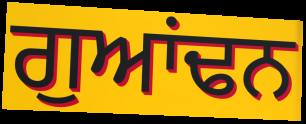
ਗੁਆਂਢਨ